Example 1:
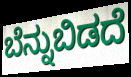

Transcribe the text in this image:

ಬೆನ್ನುಬಿಡದೆ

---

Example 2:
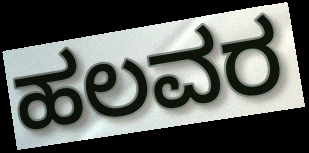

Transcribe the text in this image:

ಹಲವರ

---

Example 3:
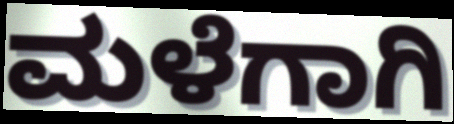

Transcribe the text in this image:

ಮಳೆಗಾಗಿ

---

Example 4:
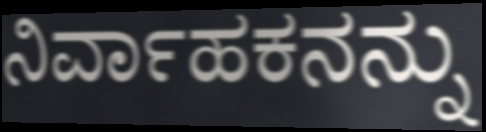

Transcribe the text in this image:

ನಿರ್ವಾಹಕನನ್ನು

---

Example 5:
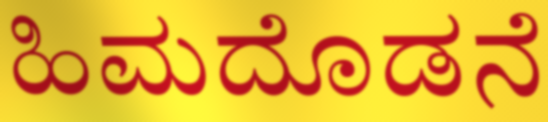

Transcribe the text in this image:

ಹಿಮದೊಡನೆ